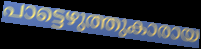
പാട്ടെഴുത്തുകാരായ